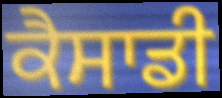
ਕੈਸਾਡੀ